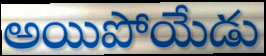
అయిపోయేడు